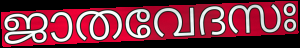
ജാതവേദസഃ